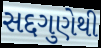
સદ્દગુણેથી